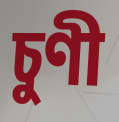
চুণী